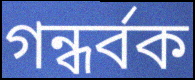
গন্ধৰ্বক